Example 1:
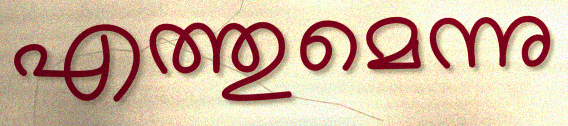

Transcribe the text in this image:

എത്തുമെന്നു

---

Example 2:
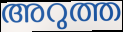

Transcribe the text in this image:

അറുത്ത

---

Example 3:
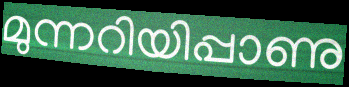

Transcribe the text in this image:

മുന്നറിയിപ്പാണു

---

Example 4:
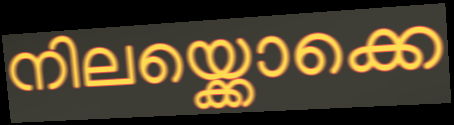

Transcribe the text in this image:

നിലയ്ക്കൊക്കെ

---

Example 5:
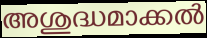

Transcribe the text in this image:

അശുദ്ധമാക്കൽ